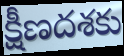
క్షీణదశకు